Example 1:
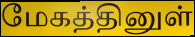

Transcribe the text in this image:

மேகத்தினுள்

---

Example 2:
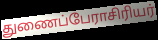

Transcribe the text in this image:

துணைப்பேராசிரியர்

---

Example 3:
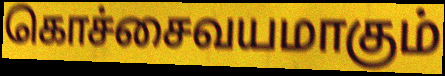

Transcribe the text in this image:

கொச்சைவயமாகும்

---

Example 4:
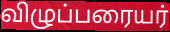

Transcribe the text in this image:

விழுப்பரையர்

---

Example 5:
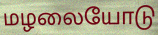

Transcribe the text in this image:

மழலையோடு